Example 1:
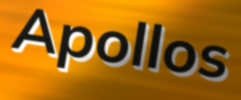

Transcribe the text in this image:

Apollos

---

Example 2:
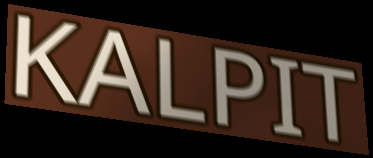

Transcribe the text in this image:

KALPIT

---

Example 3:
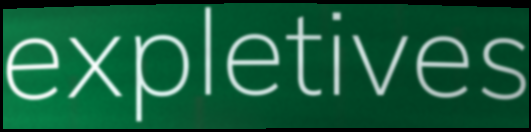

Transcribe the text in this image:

expletives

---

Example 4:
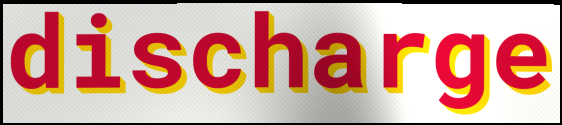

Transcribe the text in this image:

discharge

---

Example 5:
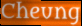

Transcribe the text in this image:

Cheung